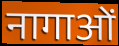
नागाओं